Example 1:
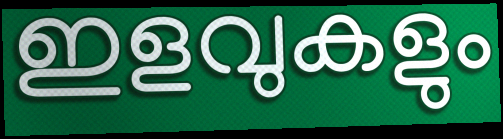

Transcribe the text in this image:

ഇളവുകളും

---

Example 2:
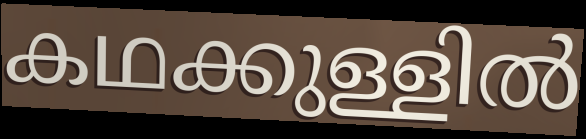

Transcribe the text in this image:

കഥക്കുള്ളിൽ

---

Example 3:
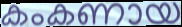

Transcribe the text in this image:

കംകണായ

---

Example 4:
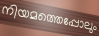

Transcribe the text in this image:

നിയമത്തെപ്പോലും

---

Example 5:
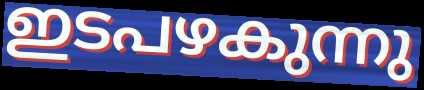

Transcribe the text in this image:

ഇടപഴകുന്നു